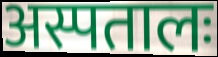
अस्पतालः